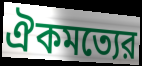
ঐকমত্যের